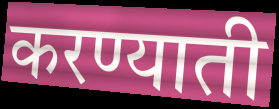
करण्याती